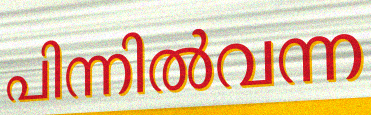
പിന്നിൽവന്ന